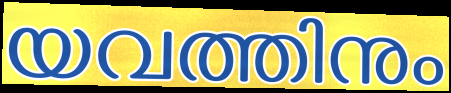
യവത്തിനും